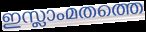
ഇസ്ലാംമതത്തെ